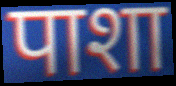
पाशा